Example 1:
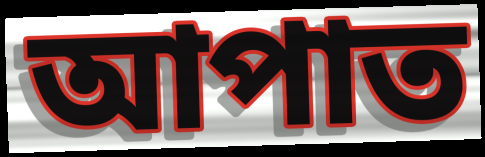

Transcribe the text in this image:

আপাত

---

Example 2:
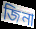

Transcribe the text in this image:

জিনা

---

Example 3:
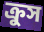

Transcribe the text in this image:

ক্রুস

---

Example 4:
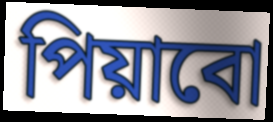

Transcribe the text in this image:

পিয়াবো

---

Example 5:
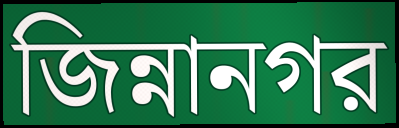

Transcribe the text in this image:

জিন্নানগর